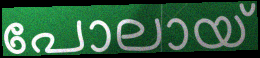
പോലായ്